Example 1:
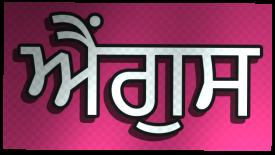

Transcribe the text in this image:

ਐਂਗੁਸ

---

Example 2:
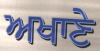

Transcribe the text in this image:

ਅਖਾਣੇ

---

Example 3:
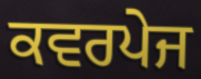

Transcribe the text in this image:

ਕਵਰਪੇਜ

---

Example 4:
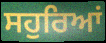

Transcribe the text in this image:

ਸਹੁਰਿਆਂ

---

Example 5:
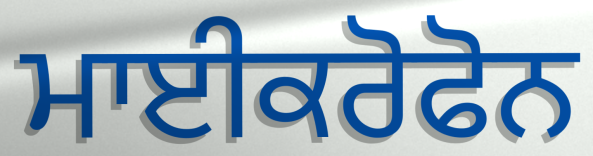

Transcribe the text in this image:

ਮਾਈਕਰੋਫੋਨ